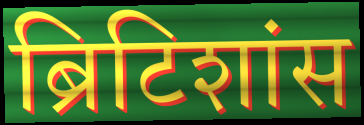
ब्रिटिशांस